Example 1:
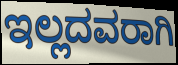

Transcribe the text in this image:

ಇಲ್ಲದವರಾಗಿ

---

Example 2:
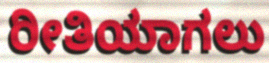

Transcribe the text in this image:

ರೀತಿಯಾಗಲು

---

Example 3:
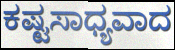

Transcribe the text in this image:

ಕಷ್ಟಸಾಧ್ಯವಾದ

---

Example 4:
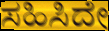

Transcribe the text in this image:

ಸಹಿಸಿದೇ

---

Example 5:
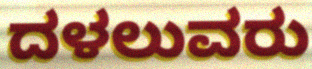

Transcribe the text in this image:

ದಳಲುವರು